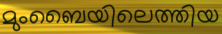
മുംബൈയിലെത്തിയ